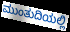
ಮುಂತುದಿಯಲ್ಲಿ